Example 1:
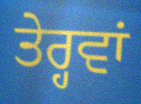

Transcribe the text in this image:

ਤੇਰ੍ਹਵਾਂ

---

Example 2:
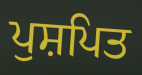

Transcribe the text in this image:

ਪੁਸ਼ਪਿਤ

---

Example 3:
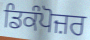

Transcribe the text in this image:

ਡਿਕੰਪੋਜ਼ਰ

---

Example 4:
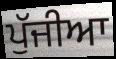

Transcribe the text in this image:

ਪੁੱਜੀਆ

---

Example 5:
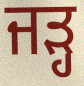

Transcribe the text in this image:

ਜੜ੍ਹ